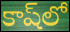
కాష్‌లో